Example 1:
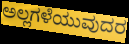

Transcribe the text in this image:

ಅಲ್ಲಗಳೆಯುವುದರ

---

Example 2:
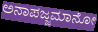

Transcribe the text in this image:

ಅನಾಪಜ್ಜಮಾನೋ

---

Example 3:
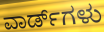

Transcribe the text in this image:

ವಾರ್ಡ್‌ಗಳು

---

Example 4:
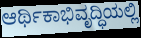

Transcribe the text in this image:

ಆರ್ಥಿಕಾಭಿವೃದ್ಧಿಯಲ್ಲಿ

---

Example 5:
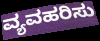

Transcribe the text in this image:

ವ್ಯವಹರಿಸು